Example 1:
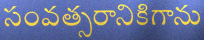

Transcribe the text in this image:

సంవత్సరానికిగాను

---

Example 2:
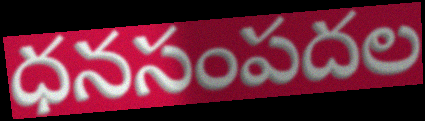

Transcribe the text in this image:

ధనసంపదల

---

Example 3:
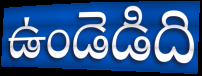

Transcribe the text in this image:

ఉండెడిది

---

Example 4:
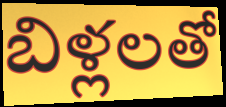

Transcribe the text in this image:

బిళ్లలతో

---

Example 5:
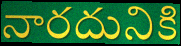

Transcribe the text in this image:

నారదునికి